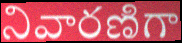
నివారణిగా